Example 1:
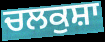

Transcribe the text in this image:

ਚਲਕੁਸ਼ਾ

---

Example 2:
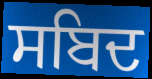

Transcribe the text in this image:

ਸਬਿਦ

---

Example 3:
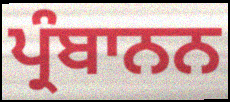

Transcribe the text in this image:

ਪ੍ਰੰਬਾਨਨ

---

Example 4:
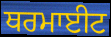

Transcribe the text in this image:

ਥਰਮਾਈਟ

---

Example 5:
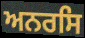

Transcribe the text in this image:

ਅਨਰਸਿ